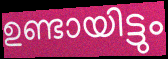
ഉണ്ടായിട്ടും